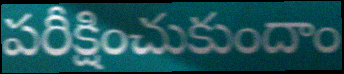
పరీక్షించుకుందాం